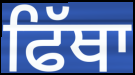
ਫਿੱਥਾ